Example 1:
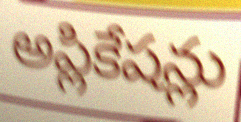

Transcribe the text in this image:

అప్లికేషన్లు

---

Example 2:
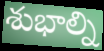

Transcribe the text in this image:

శుభాల్ని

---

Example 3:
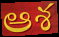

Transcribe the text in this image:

ఆశ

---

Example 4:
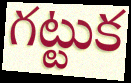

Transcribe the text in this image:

గట్టుక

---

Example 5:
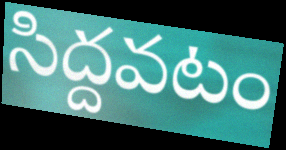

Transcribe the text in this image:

సిద్దవటం